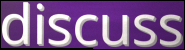
discuss